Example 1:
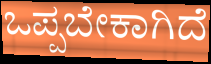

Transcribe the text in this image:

ಒಪ್ಪಬೇಕಾಗಿದೆ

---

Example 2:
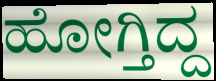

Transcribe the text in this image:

ಹೋಗ್ತಿದ್ದ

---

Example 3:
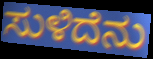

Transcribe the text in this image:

ಸುಳಿದೆನು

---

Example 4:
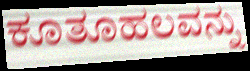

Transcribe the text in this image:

ಕೂತೂಹಲವನ್ನು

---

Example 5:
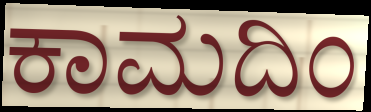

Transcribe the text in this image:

ಕಾಮದಿಂ